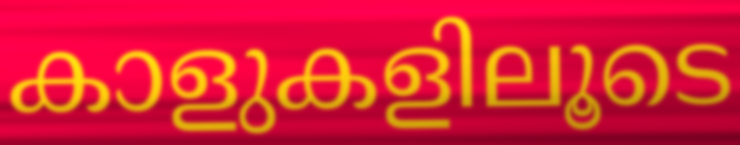
കാളുകളിലൂടെ